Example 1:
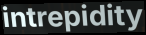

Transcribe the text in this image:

intrepidity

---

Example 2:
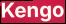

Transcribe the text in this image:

Kengo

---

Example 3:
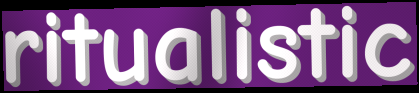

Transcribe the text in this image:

ritualistic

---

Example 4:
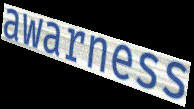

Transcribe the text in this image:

awarness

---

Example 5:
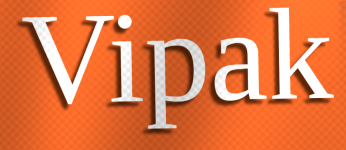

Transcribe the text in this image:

Vipak